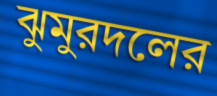
ঝুমুরদলের